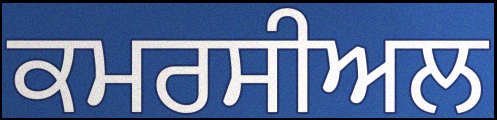
ਕਮਰਸੀਅਲ